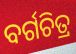
ବର୍ଗଚିତ୍ର